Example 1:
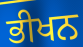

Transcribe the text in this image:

ਭੀਖਨ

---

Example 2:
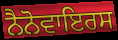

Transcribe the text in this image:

ਨੈਨੋਵਾਇਰਸ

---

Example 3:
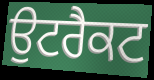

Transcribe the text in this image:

ਉਟਰੈਕਟ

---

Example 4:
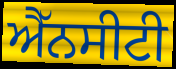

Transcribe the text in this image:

ਐੱਨਸੀਟੀ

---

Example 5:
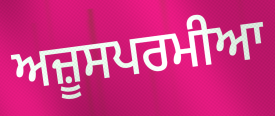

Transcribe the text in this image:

ਅਜ਼ੂਸਪਰਮੀਆ